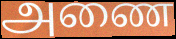
அணை